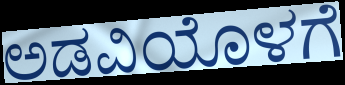
ಅಡವಿಯೊಳಗೆ